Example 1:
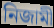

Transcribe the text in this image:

নিজামী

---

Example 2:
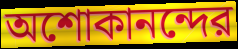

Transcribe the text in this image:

অশোকানন্দের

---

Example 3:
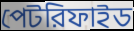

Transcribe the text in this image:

পেটরিফাইড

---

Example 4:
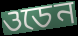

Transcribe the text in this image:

ওডেন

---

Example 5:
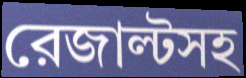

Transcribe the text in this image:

রেজাল্টসহ